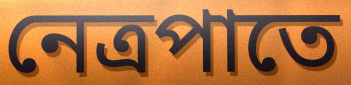
নেত্রপাতে